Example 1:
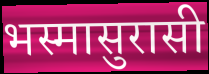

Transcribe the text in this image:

भस्मासुरासी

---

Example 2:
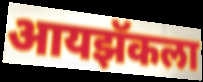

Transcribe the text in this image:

आयझॅकला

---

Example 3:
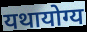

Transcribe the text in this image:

यथायोग्य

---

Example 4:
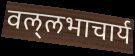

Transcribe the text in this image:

वल्लभाचार्य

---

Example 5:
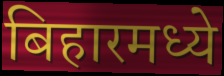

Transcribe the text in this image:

बिहारमध्ये